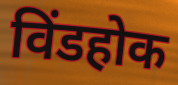
विंडहोक